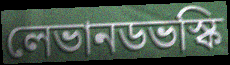
লেভানডভস্কি